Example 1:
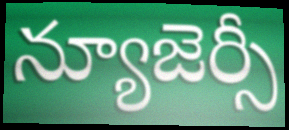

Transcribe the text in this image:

న్యూజెర్సీ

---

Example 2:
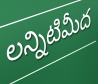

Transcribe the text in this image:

లన్నిటిమీద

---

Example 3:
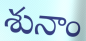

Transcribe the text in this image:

శునాం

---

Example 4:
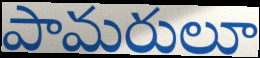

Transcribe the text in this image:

పామరులూ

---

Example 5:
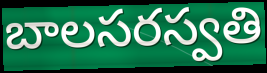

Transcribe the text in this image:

బాలసరస్వతి